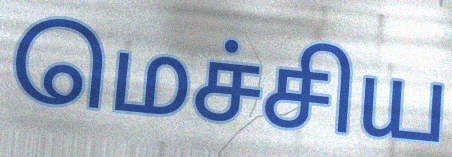
மெச்சிய